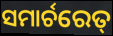
ସମାର୍ଚରେତ୍